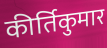
कीर्तिकुमार